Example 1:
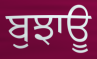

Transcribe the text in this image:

ਬੁਝਾਊ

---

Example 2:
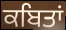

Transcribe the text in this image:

ਕਬਿਤਾਂ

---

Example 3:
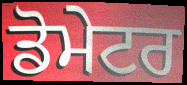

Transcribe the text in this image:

ਡੋਮੇਟਰ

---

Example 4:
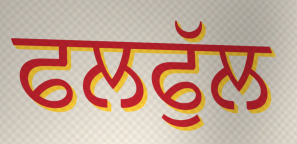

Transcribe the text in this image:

ਫਲਫੁੱਲ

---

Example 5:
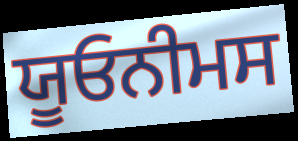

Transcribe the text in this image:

ਯੂਓਨੀਮਸ